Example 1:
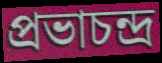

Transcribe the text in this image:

প্রভাচন্দ্র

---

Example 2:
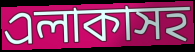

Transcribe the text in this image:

এলাকাসহ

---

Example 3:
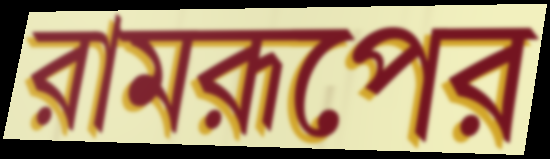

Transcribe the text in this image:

রামরূপের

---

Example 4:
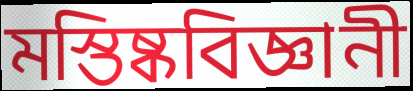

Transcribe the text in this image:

মস্তিষ্কবিজ্ঞানী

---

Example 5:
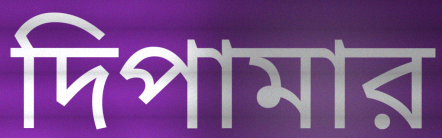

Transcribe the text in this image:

দিপামার